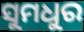
ସୁମଧୁର